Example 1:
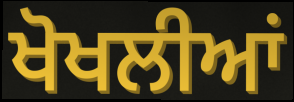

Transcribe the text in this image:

ਖੋਖਲੀਆਂ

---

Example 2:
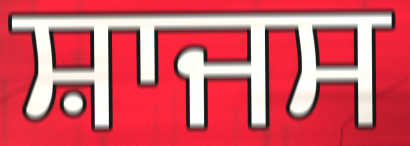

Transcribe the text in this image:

ਸ਼ਾਜਸ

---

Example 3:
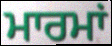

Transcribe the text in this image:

ਮਾਰਮਾਂ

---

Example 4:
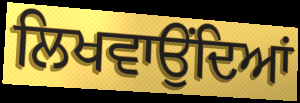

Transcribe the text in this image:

ਲਿਖਵਾਉਂਦਿਆਂ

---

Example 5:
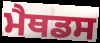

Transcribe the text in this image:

ਮੈਥਡਸ